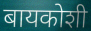
बायकोशी